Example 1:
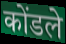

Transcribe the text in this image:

कोंडले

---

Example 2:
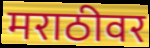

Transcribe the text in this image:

मराठीवर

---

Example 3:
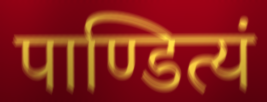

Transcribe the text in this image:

पाण्डित्यं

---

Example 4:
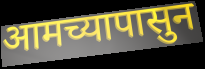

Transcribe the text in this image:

आमच्यापासुन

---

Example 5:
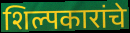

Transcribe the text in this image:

शिल्पकारांचे